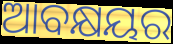
ଆବକ୍ଷୟର